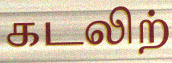
கடலிற்